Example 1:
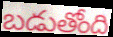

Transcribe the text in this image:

బడుతోంది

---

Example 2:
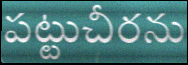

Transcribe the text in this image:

పట్టుచీరను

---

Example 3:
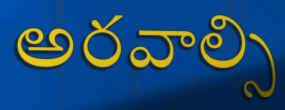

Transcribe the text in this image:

అరవాల్సి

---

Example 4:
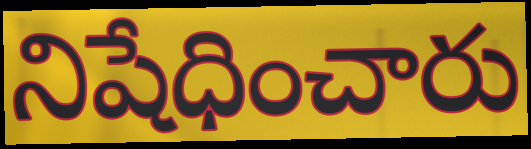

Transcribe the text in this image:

నిషేధించారు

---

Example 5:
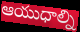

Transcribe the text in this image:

ఆయుధాల్ని